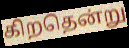
கிறதென்று